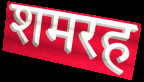
शमरह